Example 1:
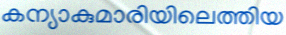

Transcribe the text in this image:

കന്യാകുമാരിയിലെത്തിയ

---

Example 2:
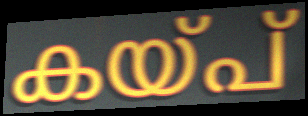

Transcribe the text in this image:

കയ്പ്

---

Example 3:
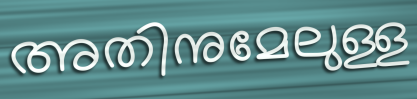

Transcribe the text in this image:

അതിനുമേലുള്ള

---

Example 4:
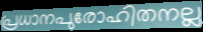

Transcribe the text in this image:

പ്രധാനപുരോഹിതനല്ല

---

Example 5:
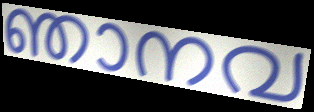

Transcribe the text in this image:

ഞാനവ